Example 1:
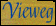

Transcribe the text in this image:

Vieweg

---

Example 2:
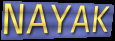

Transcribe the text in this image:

NAYAK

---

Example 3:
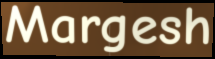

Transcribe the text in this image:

Margesh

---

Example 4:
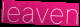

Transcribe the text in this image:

leaven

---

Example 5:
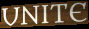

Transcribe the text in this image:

UNITE